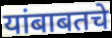
यांबाबतचे